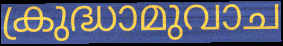
ക്രുദ്ധാമുവാച